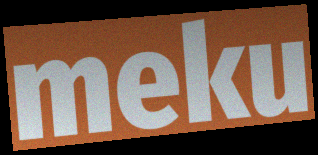
meku